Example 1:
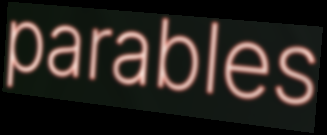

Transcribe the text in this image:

parables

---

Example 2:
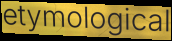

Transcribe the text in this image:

etymological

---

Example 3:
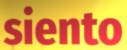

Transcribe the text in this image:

siento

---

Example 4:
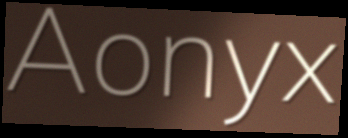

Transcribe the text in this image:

Aonyx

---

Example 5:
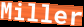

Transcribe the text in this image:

Miller